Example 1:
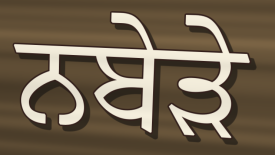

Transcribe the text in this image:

ਨਬੇੜੇ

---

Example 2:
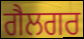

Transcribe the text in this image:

ਗੈਲਗਰ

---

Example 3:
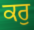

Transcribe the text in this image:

ਕਰੁ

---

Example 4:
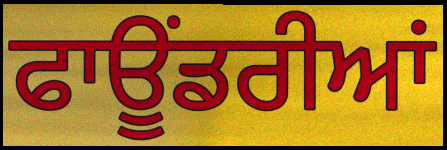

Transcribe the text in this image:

ਫਾਊਂਡਰੀਆਂ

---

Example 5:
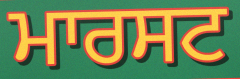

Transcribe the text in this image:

ਮਾਰਸਟ